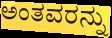
ಅಂತವರನ್ನು